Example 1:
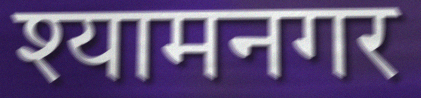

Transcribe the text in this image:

श्यामनगर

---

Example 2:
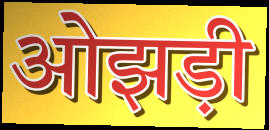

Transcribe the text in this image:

ओझड़ी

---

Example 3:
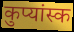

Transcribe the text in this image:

कुप्यांस्क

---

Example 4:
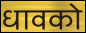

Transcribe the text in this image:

धावको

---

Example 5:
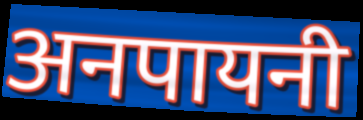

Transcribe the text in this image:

अनपायनी